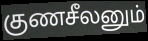
குணசீலனும்